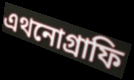
এথনোগ্রাফি